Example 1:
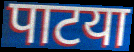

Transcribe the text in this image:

पाटया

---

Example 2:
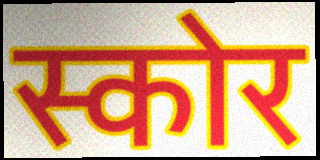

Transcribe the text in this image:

स्कोर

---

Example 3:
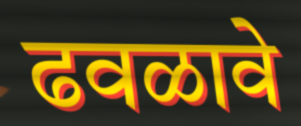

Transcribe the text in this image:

ढवळावे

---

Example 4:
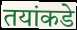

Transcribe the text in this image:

तयांकडे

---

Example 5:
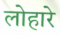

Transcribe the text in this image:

लोहारे